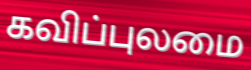
கவிப்புலமை